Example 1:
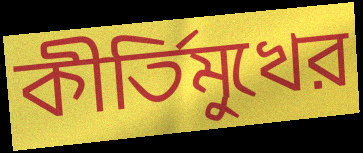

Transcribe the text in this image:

কীর্তিমুখের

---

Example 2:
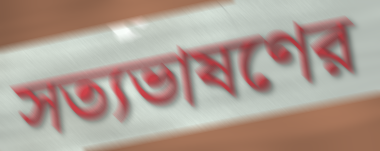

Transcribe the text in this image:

সত্যভাষণের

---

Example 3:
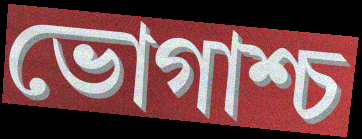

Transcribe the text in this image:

ভোগাশ্চ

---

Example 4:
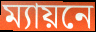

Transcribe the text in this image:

ম্যায়নে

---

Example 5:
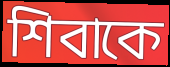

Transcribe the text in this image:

শিবাকে